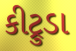
કીટ્રુડા